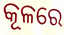
କୂଳରେ